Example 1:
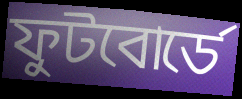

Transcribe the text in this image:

ফুটবোর্ডে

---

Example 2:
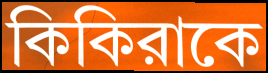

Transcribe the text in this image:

কিকিরাকে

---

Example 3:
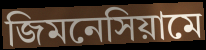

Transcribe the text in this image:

জিমনেসিয়ামে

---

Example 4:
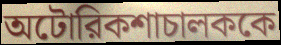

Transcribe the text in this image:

অটোরিকশাচালককে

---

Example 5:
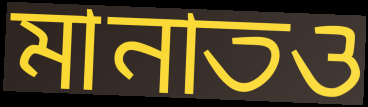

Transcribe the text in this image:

মানাতও